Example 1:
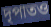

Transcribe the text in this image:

দৃপাতও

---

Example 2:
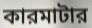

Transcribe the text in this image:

কারমাটার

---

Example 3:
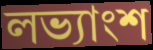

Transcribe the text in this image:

লভ্যাংশ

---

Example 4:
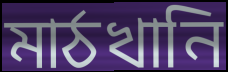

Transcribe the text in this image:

মাঠখানি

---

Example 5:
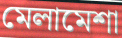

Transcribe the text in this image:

মেলামেশা